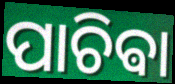
ପାଚିଵା